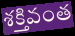
శక్తివంత